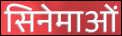
सिनेमाओं